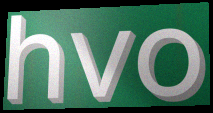
hvo